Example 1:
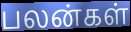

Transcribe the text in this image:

பலன்கள்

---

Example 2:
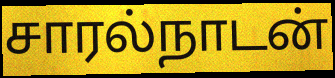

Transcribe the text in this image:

சாரல்நாடன்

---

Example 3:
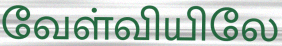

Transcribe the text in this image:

வேள்வியிலே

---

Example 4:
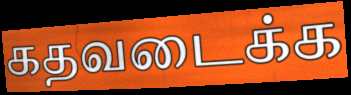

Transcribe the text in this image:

கதவடைக்க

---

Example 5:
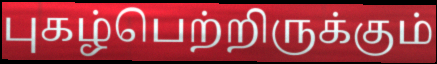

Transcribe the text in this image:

புகழ்பெற்றிருக்கும்